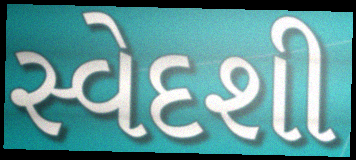
સ્વેદશી